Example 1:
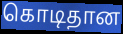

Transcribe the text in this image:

கொடிதான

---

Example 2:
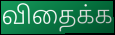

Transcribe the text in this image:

விதைக்க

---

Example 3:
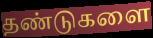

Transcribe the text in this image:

தண்டுகளை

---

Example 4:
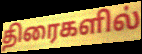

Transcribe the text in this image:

திரைகளில்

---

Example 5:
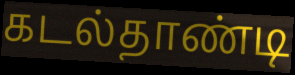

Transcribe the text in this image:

கடல்தாண்டி